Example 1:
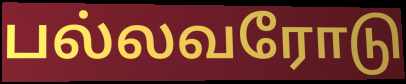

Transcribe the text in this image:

பல்லவரோடு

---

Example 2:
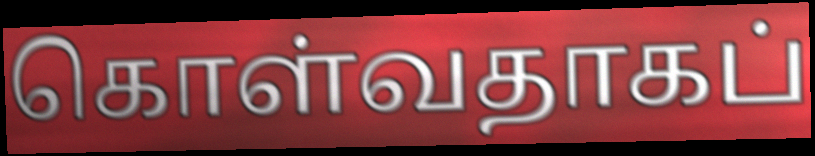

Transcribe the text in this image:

கொள்வதாகப்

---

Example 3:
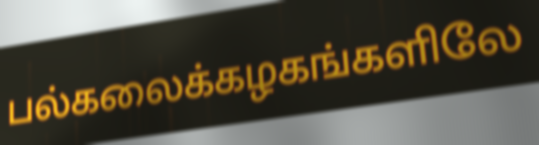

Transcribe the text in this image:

பல்கலைக்கழகங்களிலே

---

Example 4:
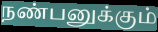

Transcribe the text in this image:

நண்பனுக்கும்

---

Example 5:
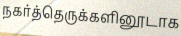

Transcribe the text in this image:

நகர்த்தெருக்களினூடாக